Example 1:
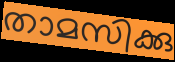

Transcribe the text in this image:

താമസിക്കു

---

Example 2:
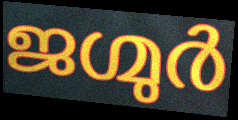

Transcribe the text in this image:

ജഗ്മുർ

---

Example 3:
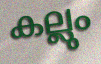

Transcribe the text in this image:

കല്ലും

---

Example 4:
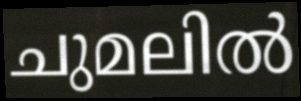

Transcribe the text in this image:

ചുമലിൽ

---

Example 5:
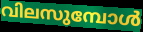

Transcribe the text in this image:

വിലസുമ്പോൾ